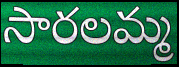
సారలమ్మ